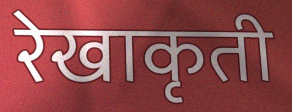
रेखाकृती